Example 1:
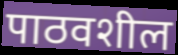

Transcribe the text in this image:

पाठवशील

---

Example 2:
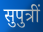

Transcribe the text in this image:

सुपुत्रीं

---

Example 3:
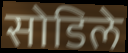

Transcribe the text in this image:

सोडिले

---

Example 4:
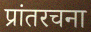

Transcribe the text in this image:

प्रांतरचना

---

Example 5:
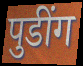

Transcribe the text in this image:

पुडींग